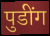
पुडींग